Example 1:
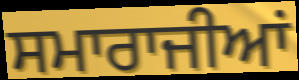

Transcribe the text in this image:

ਸਮਾਰਾਜੀਆਂ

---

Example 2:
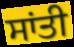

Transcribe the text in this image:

ਸਾਂਤੀ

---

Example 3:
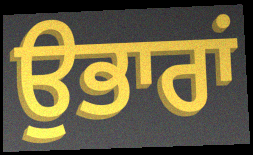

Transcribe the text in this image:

ਉਭਾਰਾਂ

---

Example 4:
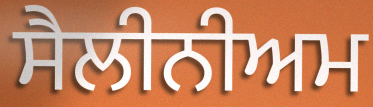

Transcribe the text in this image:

ਸੈਲੀਨੀਅਮ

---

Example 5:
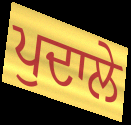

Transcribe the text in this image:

ਪੁਦਾਲੇ